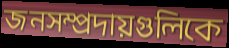
জনসম্প্রদায়গুলিকে